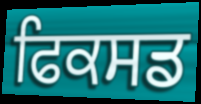
ਫਿਕਸਡ